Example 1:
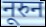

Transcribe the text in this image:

नूरुन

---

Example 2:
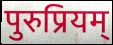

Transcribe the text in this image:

पुरुप्रियम्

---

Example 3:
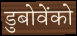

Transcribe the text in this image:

डुबोवेंको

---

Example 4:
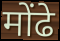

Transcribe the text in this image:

मोंढे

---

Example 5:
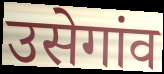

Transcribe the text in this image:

उसेगांव